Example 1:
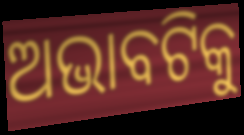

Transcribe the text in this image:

ଅଭାବଟିକୁ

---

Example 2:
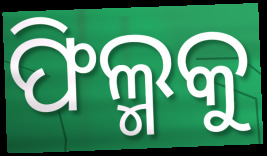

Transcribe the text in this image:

ଫିଲ୍ମକୁ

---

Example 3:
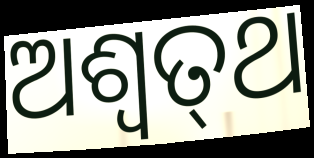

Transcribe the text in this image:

ଅଶ୍ଵତ୍‌ଥ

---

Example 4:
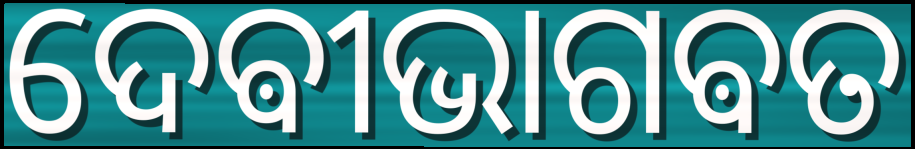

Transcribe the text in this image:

ଦେଵୀଭାଗଵତ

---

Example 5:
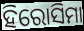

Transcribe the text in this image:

ହିରୋସିମା